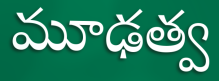
మూఢత్వ